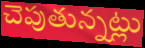
చెపుతున్నట్లు